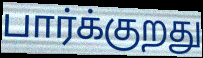
பார்க்குறது